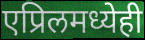
एप्रिलमध्येही